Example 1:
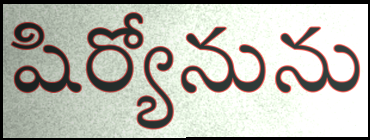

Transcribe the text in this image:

షిర్యోనును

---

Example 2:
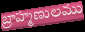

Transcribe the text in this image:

బ్రాహ్మణులము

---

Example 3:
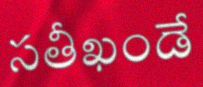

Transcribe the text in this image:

సతీఖండే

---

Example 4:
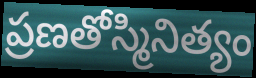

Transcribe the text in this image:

ప్రణతోస్మినిత్యం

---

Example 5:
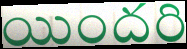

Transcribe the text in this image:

యిందరి